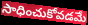
సాధించుకోవడమే